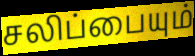
சலிப்பையும்